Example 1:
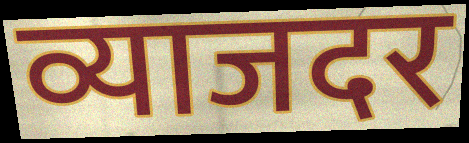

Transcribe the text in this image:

व्याजदर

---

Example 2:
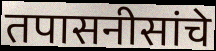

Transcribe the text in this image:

तपासनीसांचे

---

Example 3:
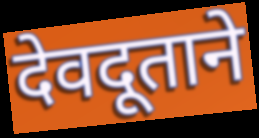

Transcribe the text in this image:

देवदूताने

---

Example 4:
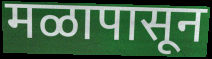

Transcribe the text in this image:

मळापासून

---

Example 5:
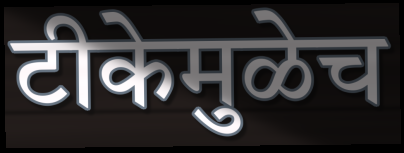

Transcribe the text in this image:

टीकेमुळेच